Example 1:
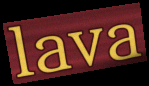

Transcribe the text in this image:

lava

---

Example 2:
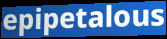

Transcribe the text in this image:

epipetalous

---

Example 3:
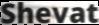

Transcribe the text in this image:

Shevat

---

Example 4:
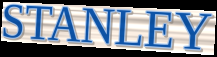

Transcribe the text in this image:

STANLEY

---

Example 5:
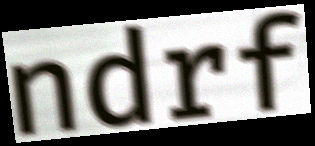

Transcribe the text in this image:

ndrf